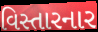
વિસ્તારનાર